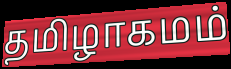
தமிழாகமம்